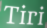
Tiri